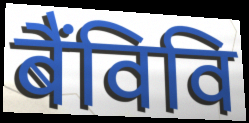
बैंविवि